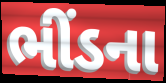
ભીંડના